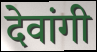
देवांगी